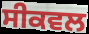
ਸੀਕਵਲ